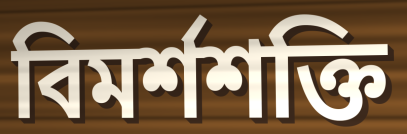
বিমর্শশক্তি